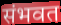
संभवत